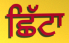
ਛਿੱਟਾ